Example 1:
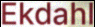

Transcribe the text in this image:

Ekdahl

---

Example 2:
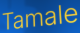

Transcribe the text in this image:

Tamale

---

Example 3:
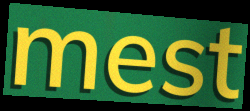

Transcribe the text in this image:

mest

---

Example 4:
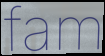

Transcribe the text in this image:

fam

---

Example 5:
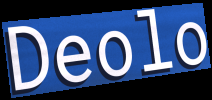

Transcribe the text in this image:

Deolo